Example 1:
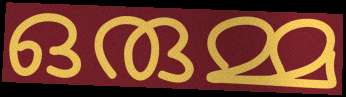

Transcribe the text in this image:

ഒരുമ്മ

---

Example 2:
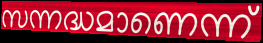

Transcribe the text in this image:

സന്നദ്ധമാണെന്ന്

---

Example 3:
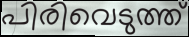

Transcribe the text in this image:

പിരിവെടുത്ത്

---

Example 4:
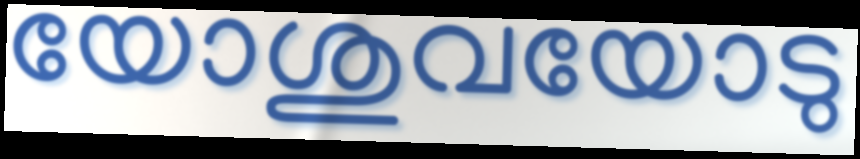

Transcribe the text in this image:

യോശുവയോടു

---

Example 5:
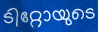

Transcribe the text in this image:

ടിറ്റോയുടെ